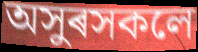
অসুৰসকলে